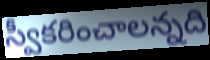
స్వీకరించాలన్నది